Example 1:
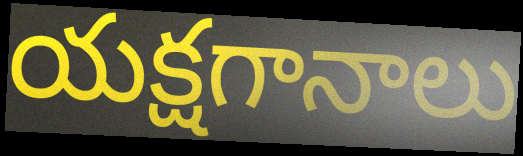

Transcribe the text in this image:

యక్షగానాలు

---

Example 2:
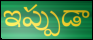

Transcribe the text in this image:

ఇప్పుడా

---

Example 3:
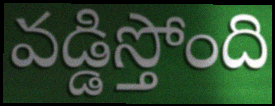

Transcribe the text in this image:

వడ్డిస్తోంది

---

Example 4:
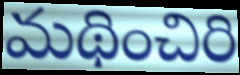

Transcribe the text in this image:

మథించిరి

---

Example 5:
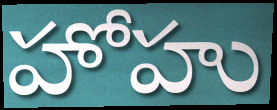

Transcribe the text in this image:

హోహు